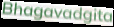
Bhagavadgita